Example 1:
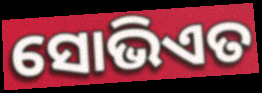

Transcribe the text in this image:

ସୋଭିଏତ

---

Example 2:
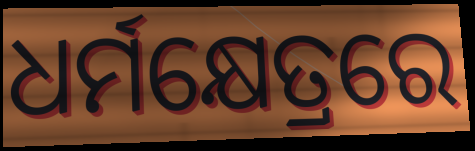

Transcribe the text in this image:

ଧର୍ମକ୍ଷେତ୍ରରେ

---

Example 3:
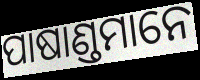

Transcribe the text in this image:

ପାଷାଣ୍ଡମାନେ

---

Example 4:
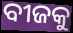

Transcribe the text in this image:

ବୀଜକୁ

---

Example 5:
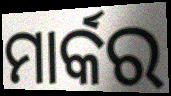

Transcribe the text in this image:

ମାର୍କର